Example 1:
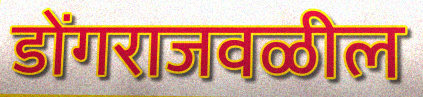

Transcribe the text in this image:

डोंगराजवळील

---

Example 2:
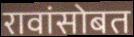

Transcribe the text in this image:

रावांसोबत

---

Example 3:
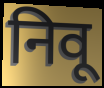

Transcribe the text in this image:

निवू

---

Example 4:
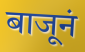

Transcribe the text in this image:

बाजूनं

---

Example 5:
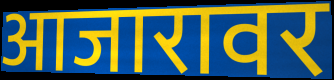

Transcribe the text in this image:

आजारावर